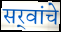
सर्वांचे